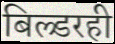
बिल्डरही